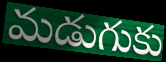
మడుగుకు